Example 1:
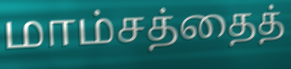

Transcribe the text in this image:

மாம்சத்தைத்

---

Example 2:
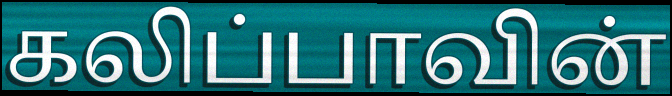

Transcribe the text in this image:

கலிப்பாவின்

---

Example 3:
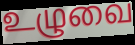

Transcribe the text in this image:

உழுவை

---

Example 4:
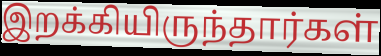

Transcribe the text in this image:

இறக்கியிருந்தார்கள்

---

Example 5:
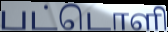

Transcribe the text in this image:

பட்டொளி